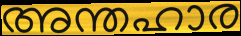
അന്തഹാര